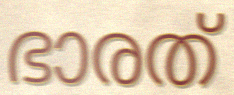
ഭാരത്